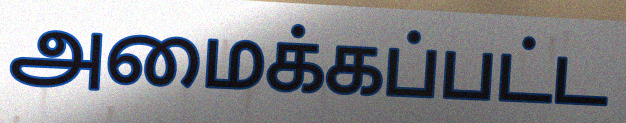
அமைக்கப்பட்ட